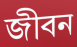
জীবন